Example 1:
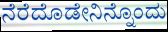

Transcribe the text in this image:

ನೆರೆದೊಡೇನಿನ್ನೊಂದು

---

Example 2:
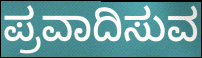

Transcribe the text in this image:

ಪ್ರವಾದಿಸುವ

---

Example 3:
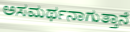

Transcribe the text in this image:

ಅಸಮರ್ಥನಾಗುತ್ತಾನೆ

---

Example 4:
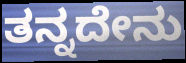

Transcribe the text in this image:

ತನ್ನದೇನು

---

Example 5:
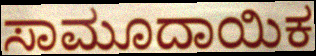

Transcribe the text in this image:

ಸಾಮೂದಾಯಿಕ